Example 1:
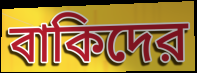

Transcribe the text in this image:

বাকিদের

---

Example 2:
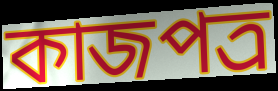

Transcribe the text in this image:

কাজপত্র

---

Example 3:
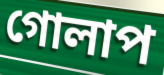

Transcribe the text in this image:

গোলাপ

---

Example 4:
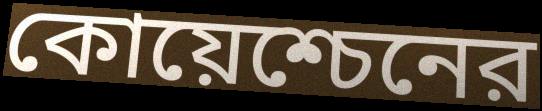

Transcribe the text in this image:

কোয়েশ্চেনের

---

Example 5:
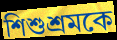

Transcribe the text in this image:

শিশুশ্রমকে